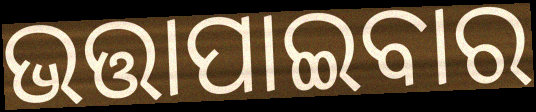
ଭତ୍ତାପାଇବାର